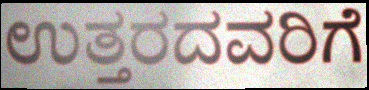
ಉತ್ತರದವರಿಗೆ